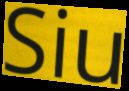
Siu